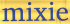
mixie